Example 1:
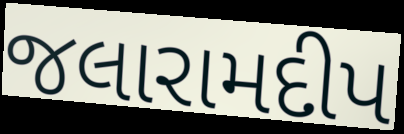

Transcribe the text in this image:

જલારામદીપ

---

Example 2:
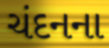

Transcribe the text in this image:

ચંદનના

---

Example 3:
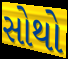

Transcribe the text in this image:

સોથો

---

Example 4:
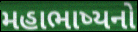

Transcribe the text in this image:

મહાભાષ્યનો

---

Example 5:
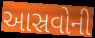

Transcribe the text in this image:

આસ્રવોની